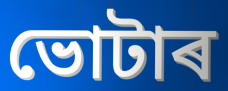
ভোটাৰ